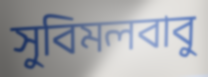
সুবিমলবাবু